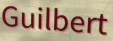
Guilbert